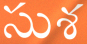
సుశ